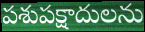
పశుపక్షాదులను